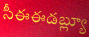
సీఈఈడబ్ల్యూ